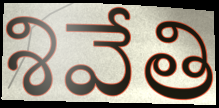
శివేతి